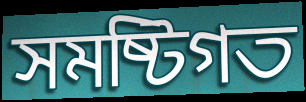
সমষ্টিগত